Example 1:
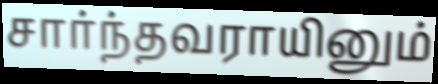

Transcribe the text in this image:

சார்ந்தவராயினும்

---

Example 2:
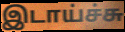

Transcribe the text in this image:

இடாய்ச்சு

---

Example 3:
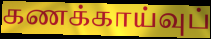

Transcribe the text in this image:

கணக்காய்வுப்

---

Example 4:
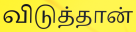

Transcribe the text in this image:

விடுத்தான்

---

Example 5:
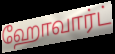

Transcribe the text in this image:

ஹோவார்ட்